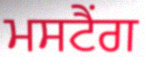
ਮਸਟੈਂਗ